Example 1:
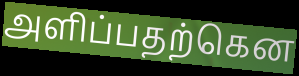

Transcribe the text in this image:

அளிப்பதற்கென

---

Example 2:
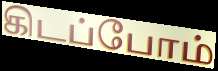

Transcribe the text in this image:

கிடப்போம்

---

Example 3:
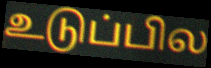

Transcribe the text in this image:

உடுப்பில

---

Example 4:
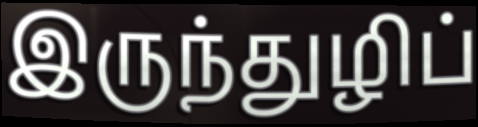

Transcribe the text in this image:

இருந்துழிப்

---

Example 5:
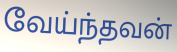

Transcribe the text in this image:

வேய்ந்தவன்